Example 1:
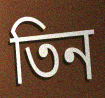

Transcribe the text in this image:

তিন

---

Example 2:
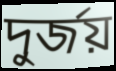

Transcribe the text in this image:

দুৰ্জয়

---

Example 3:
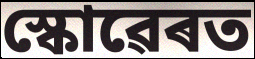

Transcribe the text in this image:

স্কোৱেৰত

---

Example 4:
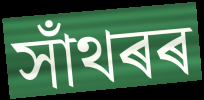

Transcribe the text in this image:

সাঁথৰৰ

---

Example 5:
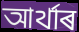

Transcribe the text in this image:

আৰ্থাৰ